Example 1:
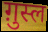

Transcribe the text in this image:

ग़ुस्ल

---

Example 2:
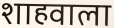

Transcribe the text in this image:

शाहवाला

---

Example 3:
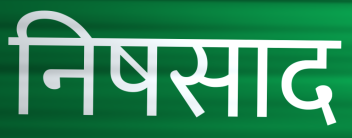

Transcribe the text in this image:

निषसाद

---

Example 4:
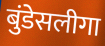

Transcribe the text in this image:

बुंडेसलीगा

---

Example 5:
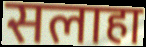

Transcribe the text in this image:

सलाहा